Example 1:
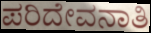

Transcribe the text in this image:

ಪರಿದೇವನಾತಿ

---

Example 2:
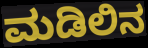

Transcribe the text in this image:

ಮಡಿಲಿನ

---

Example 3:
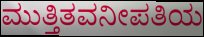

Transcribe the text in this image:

ಮುತ್ತಿತವನೀಪತಿಯ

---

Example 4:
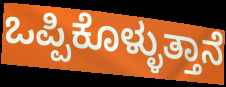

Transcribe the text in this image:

ಒಪ್ಪಿಕೊಳ್ಳುತ್ತಾನೆ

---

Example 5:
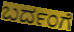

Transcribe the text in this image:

ಬರ್ದಂಗೆ